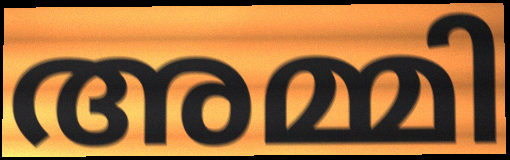
അമ്മി